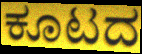
ಕೂಟದ